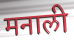
मनाली